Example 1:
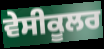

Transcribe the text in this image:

ਵੇਸੀਕੂਲਰ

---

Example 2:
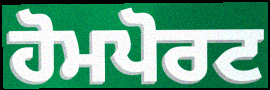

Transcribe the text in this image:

ਹੋਮਪੋਰਟ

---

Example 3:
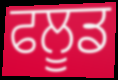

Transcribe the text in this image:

ਫਲੂਡ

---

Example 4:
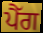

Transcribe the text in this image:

ਪੈੱਗ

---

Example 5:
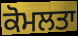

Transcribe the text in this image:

ਕੋਮਲਤਾ